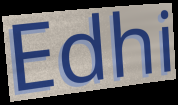
Edhi